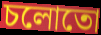
চলোতো